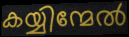
കയ്യിന്മേൽ